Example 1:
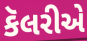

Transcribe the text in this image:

કૅલરીએ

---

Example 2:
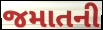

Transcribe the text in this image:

જમાતની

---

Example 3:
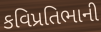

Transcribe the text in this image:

કવિપ્રતિભાની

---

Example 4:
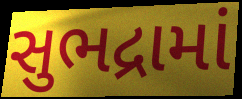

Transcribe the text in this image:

સુભદ્રામાં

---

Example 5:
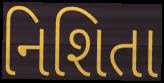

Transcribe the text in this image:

નિશિતા